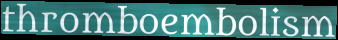
thromboembolism